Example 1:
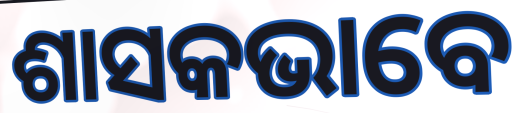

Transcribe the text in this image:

ଶାସକଭାବେ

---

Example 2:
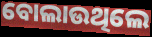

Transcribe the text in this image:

ବୋଲାଉଥିଲେ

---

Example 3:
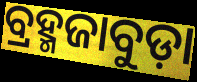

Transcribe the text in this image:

ବ୍ରହ୍ମଜାବୁଡ଼ା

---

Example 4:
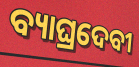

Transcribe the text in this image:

ବ୍ୟାଘ୍ରଦେବୀ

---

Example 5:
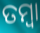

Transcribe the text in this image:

ତମ୍ୱା